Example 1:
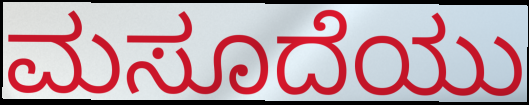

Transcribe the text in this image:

ಮಸೂದೆಯು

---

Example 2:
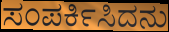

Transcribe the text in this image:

ಸಂಪರ್ಕಿಸಿದನು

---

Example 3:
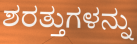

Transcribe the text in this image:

ಶರತ್ತುಗಳನ್ನು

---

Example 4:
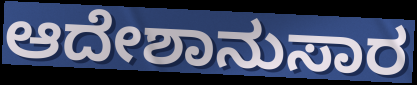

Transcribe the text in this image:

ಆದೇಶಾನುಸಾರ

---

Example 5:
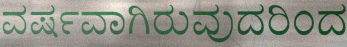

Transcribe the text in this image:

ವರ್ಷವಾಗಿರುವುದರಿಂದ